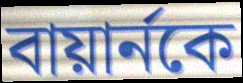
বায়ার্নকে